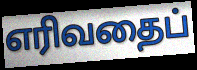
எரிவதைப்